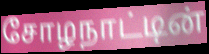
சோழநாட்டின்